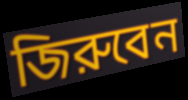
জিরুবেন